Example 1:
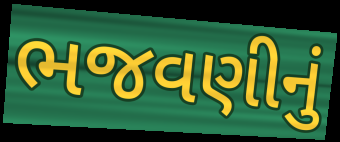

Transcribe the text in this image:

ભજવણીનું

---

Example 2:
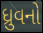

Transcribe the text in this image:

ધ્રુવનો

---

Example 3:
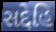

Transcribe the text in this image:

સદ્દેહિ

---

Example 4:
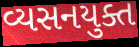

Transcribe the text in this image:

વ્યસનયુક્ત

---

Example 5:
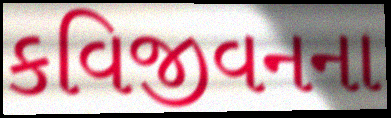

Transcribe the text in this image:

કવિજીવનના